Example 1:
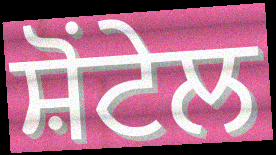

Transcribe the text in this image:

ਸ਼ੋਂਟੇਲ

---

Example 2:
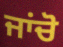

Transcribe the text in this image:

ਜਾਂਚੋ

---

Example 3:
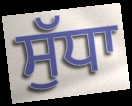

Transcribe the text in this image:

ਸੁੱਧਾ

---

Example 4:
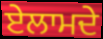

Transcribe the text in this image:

ਏਲਾਮਦੇ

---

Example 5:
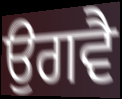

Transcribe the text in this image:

ਉਗਵੈ